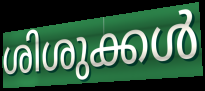
ശിശുക്കൾ